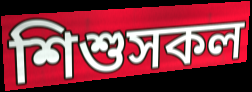
শিশুসকল